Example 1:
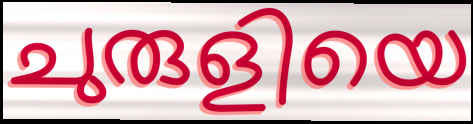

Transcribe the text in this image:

ചുരുളിയെ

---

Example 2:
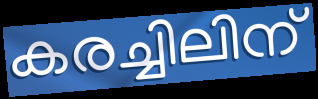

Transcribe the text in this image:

കരച്ചിലിന്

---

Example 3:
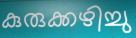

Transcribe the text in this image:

കുരുക്കഴിച്ചു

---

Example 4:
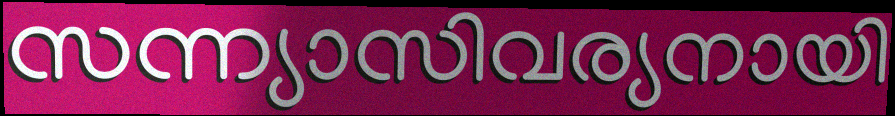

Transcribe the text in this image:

സന്ന്യാസിവര്യനായി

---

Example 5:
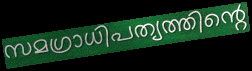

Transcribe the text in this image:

സമഗ്രാധിപത്യത്തിന്റെ